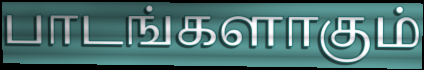
பாடங்களாகும்